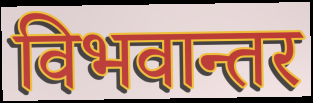
विभवान्तर